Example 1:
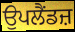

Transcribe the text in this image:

ਉਪਲੈਂਡਜ਼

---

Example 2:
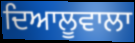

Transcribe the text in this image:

ਦਿਆਲੂਵਾਲਾ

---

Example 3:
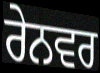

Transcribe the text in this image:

ਰੇਨਵਰ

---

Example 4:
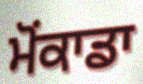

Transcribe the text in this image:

ਮੋਂਕਾਡਾ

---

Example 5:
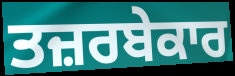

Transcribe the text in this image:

ਤਜ਼ਰਬੇਕਾਰ